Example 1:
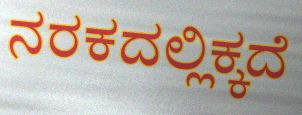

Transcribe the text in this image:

ನರಕದಲ್ಲಿಕ್ಕದೆ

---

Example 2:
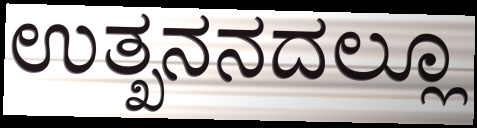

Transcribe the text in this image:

ಉತ್ಖನನದಲ್ಲೂ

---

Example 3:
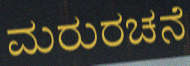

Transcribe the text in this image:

ಮರುರಚನೆ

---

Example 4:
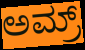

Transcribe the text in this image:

ಅಮ್ರ್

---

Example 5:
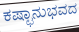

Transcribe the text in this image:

ಕಷ್ಟಾನುಭವದ